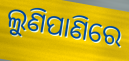
ଲୁଣିପାଣିରେ